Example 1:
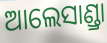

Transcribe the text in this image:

ଆଲେସାଣ୍ଡ୍ରା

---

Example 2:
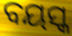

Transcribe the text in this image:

ବୟସ୍କ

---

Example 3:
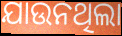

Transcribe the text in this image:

ଯାଉନଥିଲା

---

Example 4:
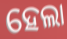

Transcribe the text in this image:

ହେଲା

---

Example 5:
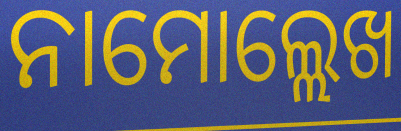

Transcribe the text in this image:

ନାମୋଲ୍ଲେଖ